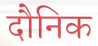
दौनिक